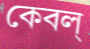
কেবল্